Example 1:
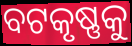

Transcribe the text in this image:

ବଟକୃଷ୍ଣକୁ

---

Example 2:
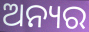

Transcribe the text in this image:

ଅନ୍ୟର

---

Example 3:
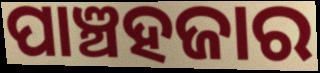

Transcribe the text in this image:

ପାଞ୍ଚହଜାର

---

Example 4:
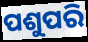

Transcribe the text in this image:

ପଶୁପରି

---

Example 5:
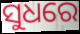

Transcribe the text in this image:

ସୁଧରେ